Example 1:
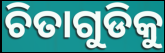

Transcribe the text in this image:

ଚିତାଗୁଡିକୁ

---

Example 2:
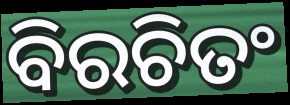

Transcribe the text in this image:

ବିରଚିତଂ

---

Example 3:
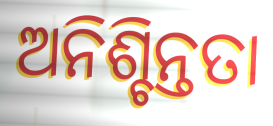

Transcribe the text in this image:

ଅନିଶ୍ଚିନ୍ତତା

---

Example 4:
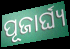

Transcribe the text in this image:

ପୂଜାର୍ଘ୍ୟ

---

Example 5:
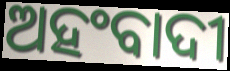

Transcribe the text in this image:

ଅହଂବାଦୀ